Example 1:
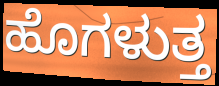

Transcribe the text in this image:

ಹೊಗಳುತ್ತ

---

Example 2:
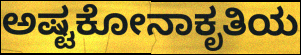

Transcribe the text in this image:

ಅಷ್ಟಕೋನಾಕೃತಿಯ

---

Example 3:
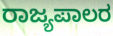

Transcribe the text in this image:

ರಾಜ್ಯಪಾಲರ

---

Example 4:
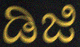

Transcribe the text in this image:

ಡಿಜಿ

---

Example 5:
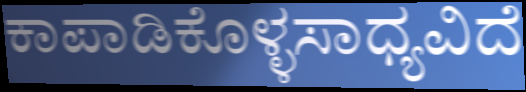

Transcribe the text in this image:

ಕಾಪಾಡಿಕೊಳ್ಳಸಾಧ್ಯವಿದೆ